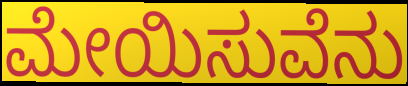
ಮೇಯಿಸುವೆನು